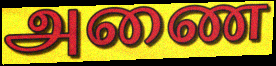
அணை